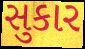
સુકાર